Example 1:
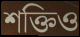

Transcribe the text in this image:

শক্তিও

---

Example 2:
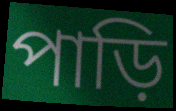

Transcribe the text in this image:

পাড়ি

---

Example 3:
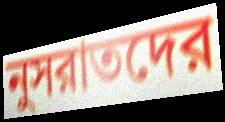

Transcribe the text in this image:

নুসরাতদের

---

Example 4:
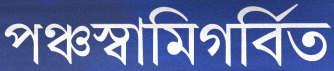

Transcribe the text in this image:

পঞ্চস্বামিগর্বিত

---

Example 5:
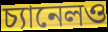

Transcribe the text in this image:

চ্যানেলও